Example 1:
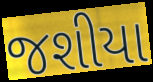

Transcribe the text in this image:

જશીયા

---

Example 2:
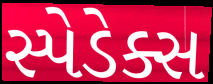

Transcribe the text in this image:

સ્પેડેક્સ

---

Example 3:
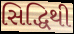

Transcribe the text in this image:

સિદ્ધિથી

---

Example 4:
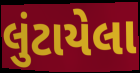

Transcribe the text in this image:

લુંટાયેલા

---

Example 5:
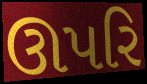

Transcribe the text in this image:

ઊપરિ